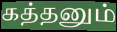
கத்தனும்